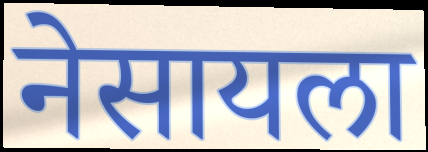
नेसायला